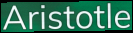
Aristotle